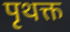
पृथक्त